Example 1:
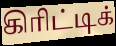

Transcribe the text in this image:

கிரிட்டிக்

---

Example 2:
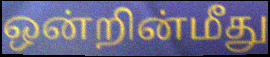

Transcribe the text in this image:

ஒன்றின்மீது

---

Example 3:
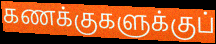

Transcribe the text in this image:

கணக்குகளுக்குப்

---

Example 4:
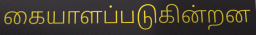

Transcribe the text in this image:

கையாளப்படுகின்றன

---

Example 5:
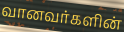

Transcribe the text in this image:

வானவர்களின்